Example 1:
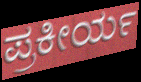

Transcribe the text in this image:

ಪ್ರಕೀರ್ಯ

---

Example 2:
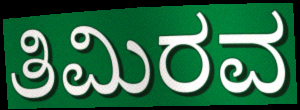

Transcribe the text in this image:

ತಿಮಿರವ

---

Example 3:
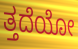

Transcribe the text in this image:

ತ್ತದೆಯೋ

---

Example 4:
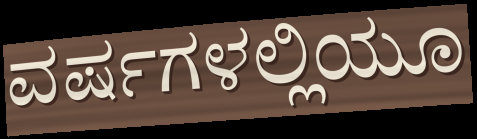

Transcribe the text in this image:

ವರ್ಷಗಳಲ್ಲಿಯೂ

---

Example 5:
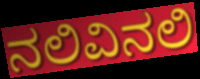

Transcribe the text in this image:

ನಲಿವಿನಲಿ